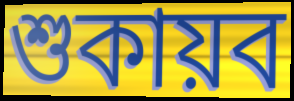
শুকায়ব